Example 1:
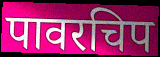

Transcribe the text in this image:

पावरचिप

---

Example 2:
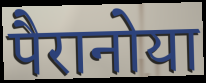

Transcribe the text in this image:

पैरानोया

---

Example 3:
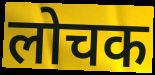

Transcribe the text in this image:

लोचक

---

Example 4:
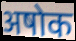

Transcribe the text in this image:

अषोक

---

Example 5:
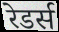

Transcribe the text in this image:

रेडर्स